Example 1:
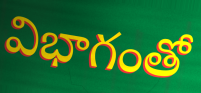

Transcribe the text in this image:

విభాగంతో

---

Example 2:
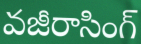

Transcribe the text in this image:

వజీరాసింగ్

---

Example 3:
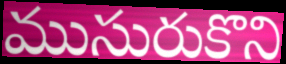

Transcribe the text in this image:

ముసురుకొని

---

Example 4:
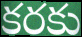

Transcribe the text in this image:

కరకు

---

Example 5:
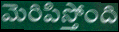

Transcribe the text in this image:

మెరిపిస్తోంది